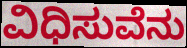
ವಿಧಿಸುವೆನು